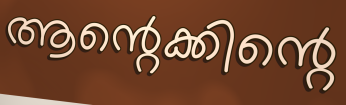
ആന്റെക്കിന്റെ